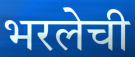
भरलेची